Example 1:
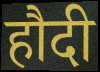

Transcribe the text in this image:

हौदी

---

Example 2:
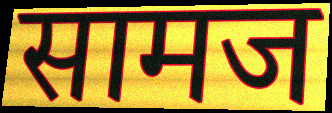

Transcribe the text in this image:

सामज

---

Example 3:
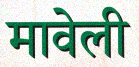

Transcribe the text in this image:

मावेली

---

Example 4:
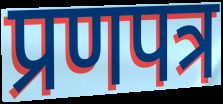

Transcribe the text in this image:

प्रणपत्र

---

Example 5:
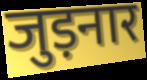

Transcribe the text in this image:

जुड़नार